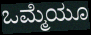
ಒಮ್ಮೆಯೂ